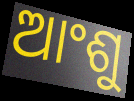
ଆଂଶୁ